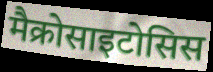
मैक्रोसाइटोसिस